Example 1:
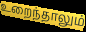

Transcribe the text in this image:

உறைந்தாலும்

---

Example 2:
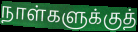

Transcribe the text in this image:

நாள்களுக்குத்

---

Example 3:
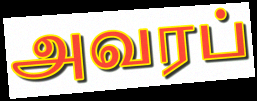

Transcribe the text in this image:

அவரப்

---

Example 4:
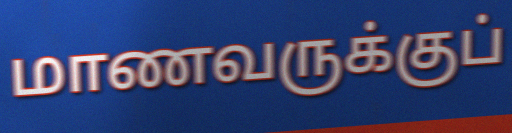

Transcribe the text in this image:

மாணவருக்குப்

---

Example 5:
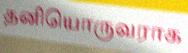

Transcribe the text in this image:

தனியொருவராக